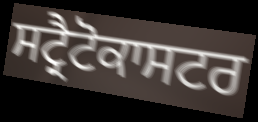
ਸਟ੍ਰੈਟੋਕਾਸਟਰ